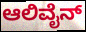
ಆಲಿವೈನ್